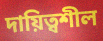
দায়িত্বশীল